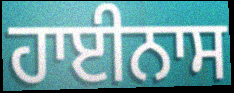
ਹਾਈਨਾਸ